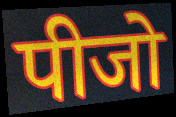
पीजो